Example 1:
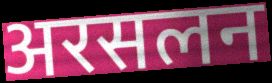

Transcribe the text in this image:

अरसलन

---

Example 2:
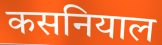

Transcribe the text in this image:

कसनियाल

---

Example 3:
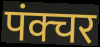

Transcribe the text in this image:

पंक्‍चर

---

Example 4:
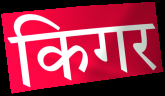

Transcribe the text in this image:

किगर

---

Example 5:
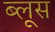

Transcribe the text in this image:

ब्लूस